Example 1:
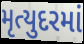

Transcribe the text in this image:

મૃત્યુદરમાં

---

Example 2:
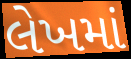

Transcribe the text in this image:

લેખમાં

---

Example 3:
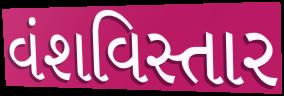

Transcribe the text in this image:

વંશવિસ્તાર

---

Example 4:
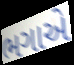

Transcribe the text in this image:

ભગાએ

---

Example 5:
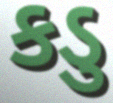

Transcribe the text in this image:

કડુ